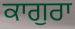
ਕਾਗੁਰਾ